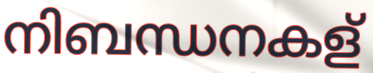
നിബന്ധനകള്